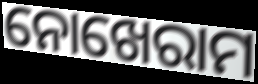
ନୋଖେରାମ